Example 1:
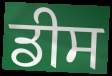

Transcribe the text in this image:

ਡੀਸ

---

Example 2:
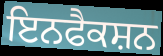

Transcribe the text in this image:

ਇਨਫੈਕਸ਼ਨ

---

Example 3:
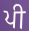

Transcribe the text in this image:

ਪੀ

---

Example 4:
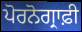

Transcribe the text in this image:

ਪੋਰਨੋਗ੍ਰਾਫ਼ੀ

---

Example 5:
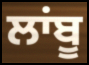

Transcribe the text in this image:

ਲਾਂਬੂ